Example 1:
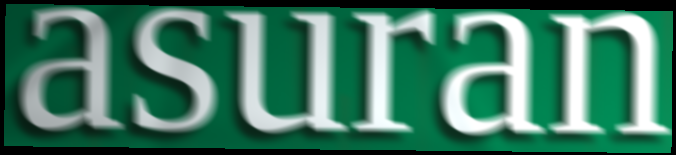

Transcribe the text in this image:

asuran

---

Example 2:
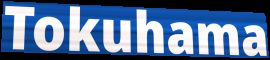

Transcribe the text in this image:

Tokuhama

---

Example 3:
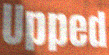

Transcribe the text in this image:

Upped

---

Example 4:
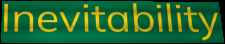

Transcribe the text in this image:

Inevitability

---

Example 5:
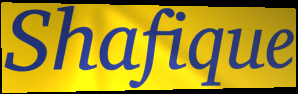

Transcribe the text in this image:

Shafique